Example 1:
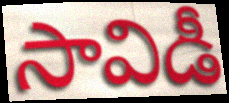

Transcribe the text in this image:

సావిడీ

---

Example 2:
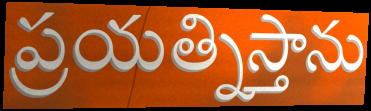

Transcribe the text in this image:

ప్రయత్నిస్తాను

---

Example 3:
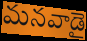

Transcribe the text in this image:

మనవాడై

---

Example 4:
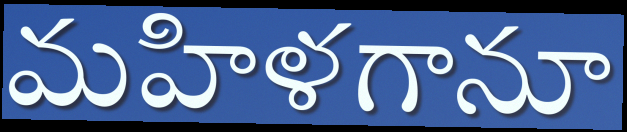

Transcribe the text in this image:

మహిళగానూ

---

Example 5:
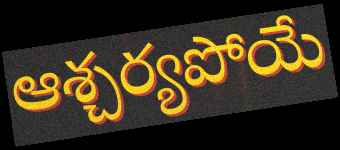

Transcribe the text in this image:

ఆశ్చర్యపోయే